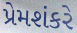
પ્રેમશંકરે